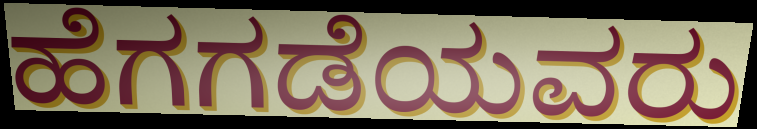
ಹೆಗಗಡೆಯವರು